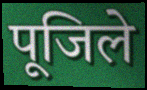
पूजिले